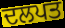
ਦਲਪਤ